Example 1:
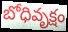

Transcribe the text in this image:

బోధివృక్షం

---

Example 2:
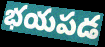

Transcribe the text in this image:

భయపడ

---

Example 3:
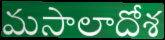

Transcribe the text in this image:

మసాలాదోశ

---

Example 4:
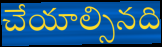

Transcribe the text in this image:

చేయాల్సినది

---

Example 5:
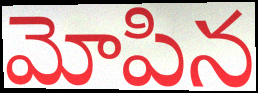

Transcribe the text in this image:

మోపిన